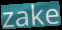
zake